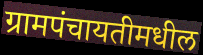
ग्रामपंचायतीमधील